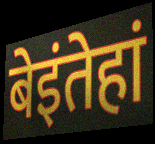
बेइंतेहां